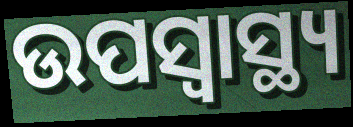
ଉପସ୍ୱାସ୍ଥ୍ୟ